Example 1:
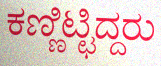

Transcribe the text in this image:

ಕಣ್ಣಿಟ್ಟಿದ್ದರು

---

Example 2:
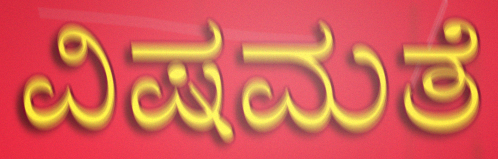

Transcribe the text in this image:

ವಿಷಮತೆ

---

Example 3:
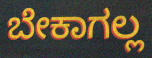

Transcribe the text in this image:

ಬೇಕಾಗಲ್ಲ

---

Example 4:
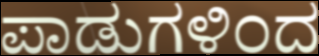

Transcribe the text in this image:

ಪಾಡುಗಳಿಂದ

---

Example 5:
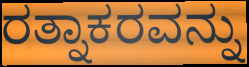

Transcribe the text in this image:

ರತ್ನಾಕರವನ್ನು